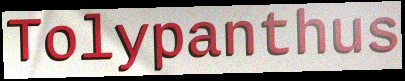
Tolypanthus